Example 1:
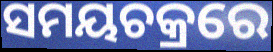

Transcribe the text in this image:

ସମୟଚକ୍ରରେ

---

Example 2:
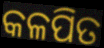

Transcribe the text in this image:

କଳପିତ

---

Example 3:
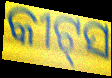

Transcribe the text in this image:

କୀଟ୍‌ସ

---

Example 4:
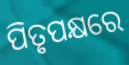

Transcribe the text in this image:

ପିତୃପକ୍ଷରେ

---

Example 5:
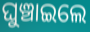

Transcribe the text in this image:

ଘୁଞ୍ଚାଇଲେ